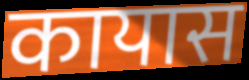
कायास